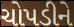
ચોપડીને